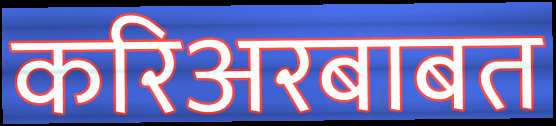
करिअरबाबत